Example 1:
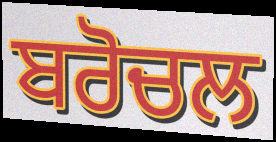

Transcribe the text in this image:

ਬਰੋਚਲ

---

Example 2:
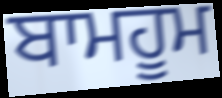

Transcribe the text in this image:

ਬਾਮਹੂਮ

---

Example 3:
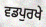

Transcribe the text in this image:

ਵਡਪੁਰਖੇ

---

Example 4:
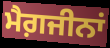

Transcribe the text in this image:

ਮੈਗ਼ਜੀਨਾਂ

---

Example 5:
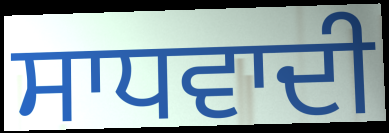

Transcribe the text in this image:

ਸਾਧਵਾਦੀ